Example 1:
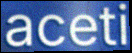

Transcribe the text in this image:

aceti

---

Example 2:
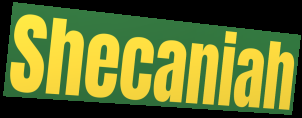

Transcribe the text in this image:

Shecaniah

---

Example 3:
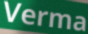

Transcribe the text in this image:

Verma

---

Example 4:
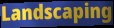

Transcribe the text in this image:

Landscaping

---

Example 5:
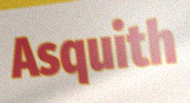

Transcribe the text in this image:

Asquith